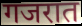
गजरात